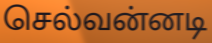
செல்வன்னடி